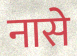
नासे